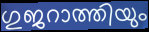
ഗുജറാത്തിയും